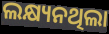
ଲକ୍ଷ୍ୟନଥିଲା